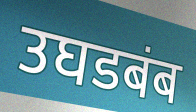
उघडबंब